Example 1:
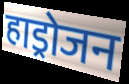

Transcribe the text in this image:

हाड्रोजन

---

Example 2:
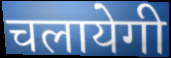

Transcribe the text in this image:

चलायेगी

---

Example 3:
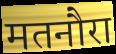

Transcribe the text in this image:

मतनौरा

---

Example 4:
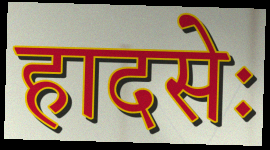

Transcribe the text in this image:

हादसेः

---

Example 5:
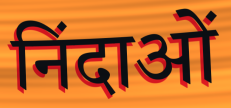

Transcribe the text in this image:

निंदाओं